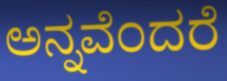
ಅನ್ನವೆಂದರೆ